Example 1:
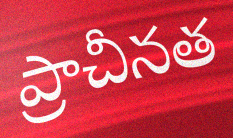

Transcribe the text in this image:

ప్రాచీనత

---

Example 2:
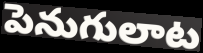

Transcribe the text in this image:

పెనుగులాట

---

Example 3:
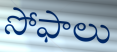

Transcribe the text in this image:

సోఫాలు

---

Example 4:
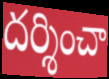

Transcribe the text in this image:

దర్శించా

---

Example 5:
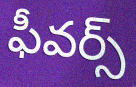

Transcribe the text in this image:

ఫీవర్స్